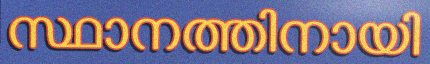
സ്ഥാനത്തിനായി